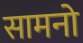
सामनो